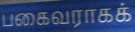
பகைவராகக்